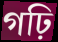
গঢ়ি